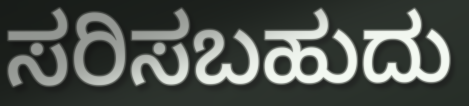
ಸರಿಸಬಹುದು